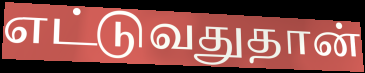
எட்டுவதுதான்